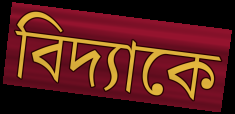
বিদ্যাকে